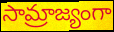
సామ్రాజ్యంగా